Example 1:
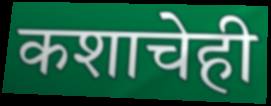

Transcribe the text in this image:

कशाचेही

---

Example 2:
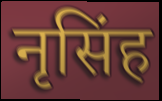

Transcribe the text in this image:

नृसिंह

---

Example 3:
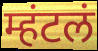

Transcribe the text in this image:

म्हंटलं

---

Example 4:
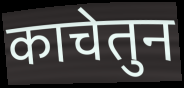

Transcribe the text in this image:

काचेतुन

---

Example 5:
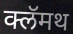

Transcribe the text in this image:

क्लॅमथ